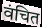
वंचित